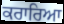
ਕਰਾਰਿਆ